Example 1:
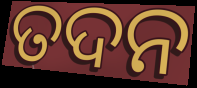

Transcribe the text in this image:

ତଦନ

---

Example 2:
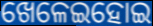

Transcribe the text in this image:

ଖେଳେଇହୋଇ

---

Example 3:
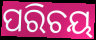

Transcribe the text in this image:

ପରିଚୟ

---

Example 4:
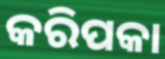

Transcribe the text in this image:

କରିପକା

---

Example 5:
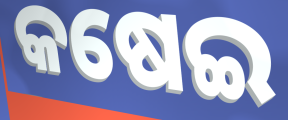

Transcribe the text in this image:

କଷେଇ